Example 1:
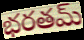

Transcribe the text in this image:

భరతమ్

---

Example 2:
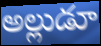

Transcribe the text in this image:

అల్లుడూ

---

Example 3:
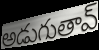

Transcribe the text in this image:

అడుగుతావ్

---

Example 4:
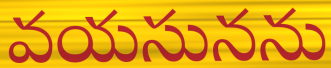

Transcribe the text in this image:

వయసునను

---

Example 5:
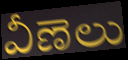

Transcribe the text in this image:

వీణెలు